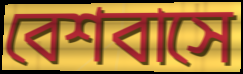
বেশবাসে